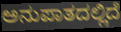
ಅನುಪಾತದಲ್ಲಿದೆ